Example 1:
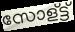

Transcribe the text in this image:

സോള്ട്ട്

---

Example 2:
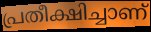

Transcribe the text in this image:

പ്രതീക്ഷിച്ചാണ്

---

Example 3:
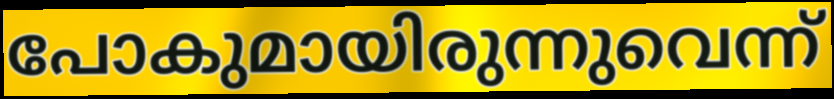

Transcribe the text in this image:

പോകുമായിരുന്നുവെന്ന്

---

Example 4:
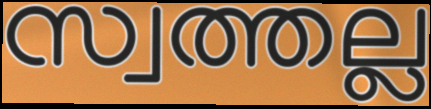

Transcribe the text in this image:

സ്വത്തല്ല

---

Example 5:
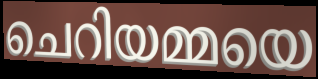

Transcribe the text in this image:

ചെറിയമ്മയെ